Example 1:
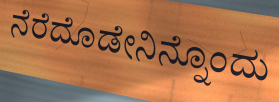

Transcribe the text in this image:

ನೆರೆದೊಡೇನಿನ್ನೊಂದು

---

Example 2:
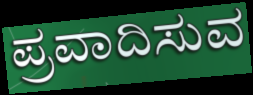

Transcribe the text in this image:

ಪ್ರವಾದಿಸುವ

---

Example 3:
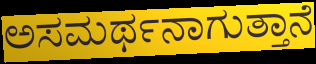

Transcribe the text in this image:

ಅಸಮರ್ಥನಾಗುತ್ತಾನೆ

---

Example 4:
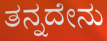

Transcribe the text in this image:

ತನ್ನದೇನು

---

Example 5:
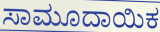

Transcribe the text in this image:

ಸಾಮೂದಾಯಿಕ